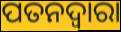
ପତନଦ୍ୱାରା